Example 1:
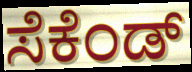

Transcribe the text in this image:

ಸೆಕೆಂಡ್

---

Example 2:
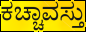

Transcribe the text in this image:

ಕಚ್ಚಾವಸ್ತು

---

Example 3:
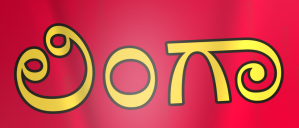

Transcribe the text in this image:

ಲಿಂಗಾ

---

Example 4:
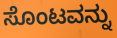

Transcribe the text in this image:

ಸೊಂಟವನ್ನು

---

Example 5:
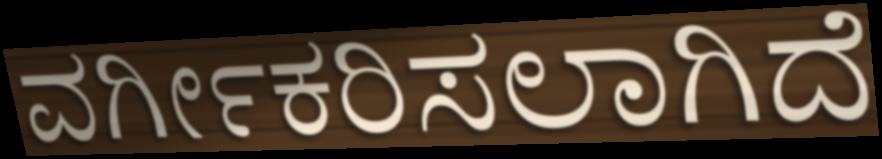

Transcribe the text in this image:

ವರ್ಗೀಕರಿಸಲಾಗಿದೆ